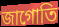
জাগোতি